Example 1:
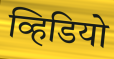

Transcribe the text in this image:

व्हिडियो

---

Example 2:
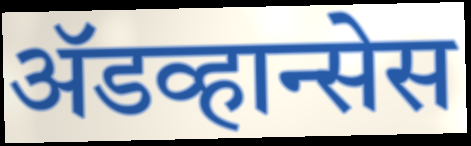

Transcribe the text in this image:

ॲडव्हान्सेस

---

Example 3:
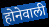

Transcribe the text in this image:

होनेवाली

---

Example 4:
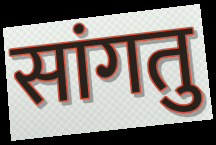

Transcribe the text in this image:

सांगतु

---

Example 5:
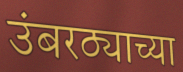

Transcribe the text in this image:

उंबरठ्याच्या